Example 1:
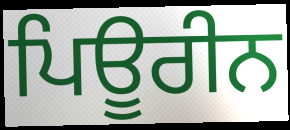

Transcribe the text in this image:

ਪਿਊਰੀਨ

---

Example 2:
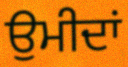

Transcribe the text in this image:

ਉਮੀਦਾਂ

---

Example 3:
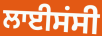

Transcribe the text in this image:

ਲਾਈਸਂਸੀ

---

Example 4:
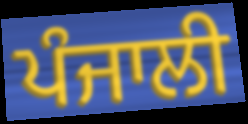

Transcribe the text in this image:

ਪੰਜਾਲੀ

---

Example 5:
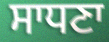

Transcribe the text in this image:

ਸਾਧਣਾ